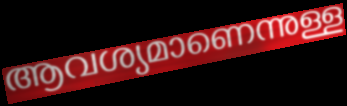
ആവശ്യമാണെന്നുള്ള